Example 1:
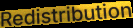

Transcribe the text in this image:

Redistribution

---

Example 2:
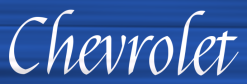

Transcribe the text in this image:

Chevrolet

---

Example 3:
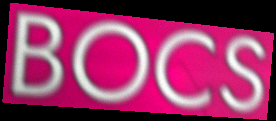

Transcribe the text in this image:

BOCS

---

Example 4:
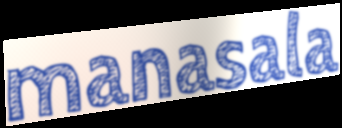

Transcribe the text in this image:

manasala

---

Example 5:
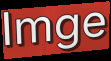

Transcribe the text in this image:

Imge